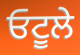
ਓਟੂਲੇ